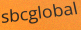
sbcglobal